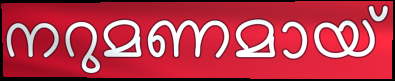
നറുമണമായ്